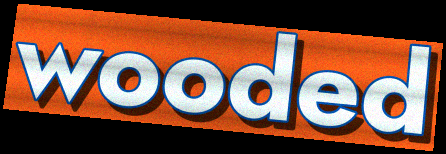
wooded